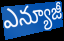
ఎన్యూజీ